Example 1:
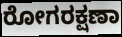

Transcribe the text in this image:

ರೋಗರಕ್ಷಣಾ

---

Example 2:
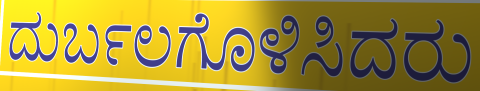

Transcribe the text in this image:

ದುರ್ಬಲಗೊಳಿಸಿದರು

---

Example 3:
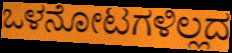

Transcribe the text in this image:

ಒಳನೋಟಗಳಿಲ್ಲದ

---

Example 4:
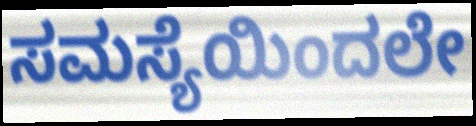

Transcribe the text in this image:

ಸಮಸ್ಯೆಯಿಂದಲೇ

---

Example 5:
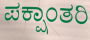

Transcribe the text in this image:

ಪಕ್ಷಾಂತರಿ